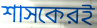
শাসকেরই